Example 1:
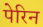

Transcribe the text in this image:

पेरिन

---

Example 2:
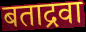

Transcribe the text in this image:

बताद्रवा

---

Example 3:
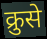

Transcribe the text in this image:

क्रुसे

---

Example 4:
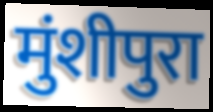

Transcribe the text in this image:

मुंशीपुरा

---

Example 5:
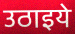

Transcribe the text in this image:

उठाइये